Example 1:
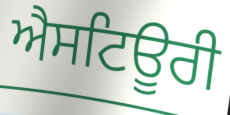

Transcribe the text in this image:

ਐਸਟਿਊਰੀ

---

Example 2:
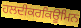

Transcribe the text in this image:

ਹਲਦੀਕਰਕਿਊਮਿਨ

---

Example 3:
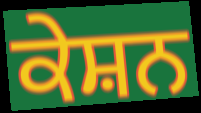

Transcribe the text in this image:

ਕੇਸ਼ਨ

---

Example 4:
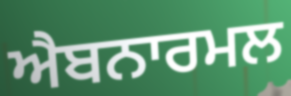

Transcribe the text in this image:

ਐਬਨਾਰਮਲ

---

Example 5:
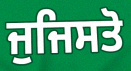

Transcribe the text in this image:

ਜੁਜਿਸਤੋ